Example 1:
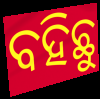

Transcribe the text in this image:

ବହିଛୁ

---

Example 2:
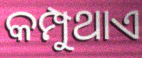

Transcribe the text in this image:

କମ୍ପୁଥାଏ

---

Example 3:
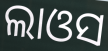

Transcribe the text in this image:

ଲାଓସ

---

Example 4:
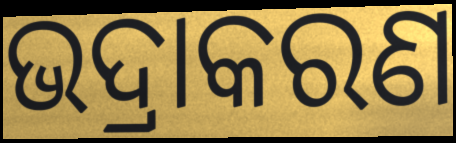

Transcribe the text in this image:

ଭଦ୍ରାକରଣ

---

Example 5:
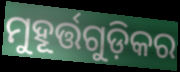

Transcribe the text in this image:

ମୁହୂର୍ତ୍ତଗୁଡ଼ିକର